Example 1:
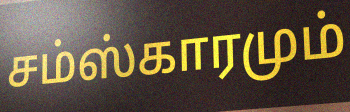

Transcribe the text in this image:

சம்ஸ்காரமும்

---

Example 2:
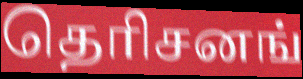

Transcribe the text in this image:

தெரிசனங்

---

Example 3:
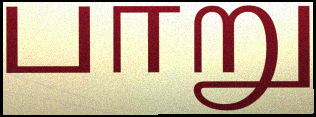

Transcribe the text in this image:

பாறு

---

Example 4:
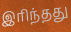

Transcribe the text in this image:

இரிந்தது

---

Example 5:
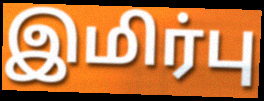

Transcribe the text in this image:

இமிர்பு